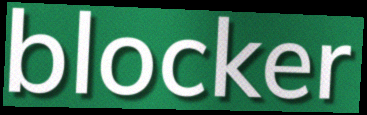
blocker